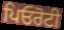
ਪਿਓਰੋਟੀ